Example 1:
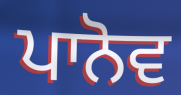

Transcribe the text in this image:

ਪਾਨੋਵ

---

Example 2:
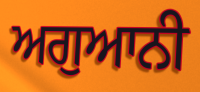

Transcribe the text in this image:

ਅਗੁਆਨੀ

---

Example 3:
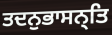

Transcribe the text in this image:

ਤਦਨੁਭਾਸਨ੍ਤਿ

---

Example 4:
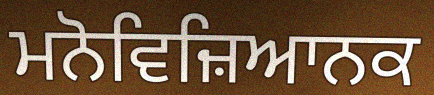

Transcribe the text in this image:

ਮਨੋਵਿਜ਼ਿਆਨਕ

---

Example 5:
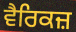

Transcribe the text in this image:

ਵੈਰਿਕਜ਼